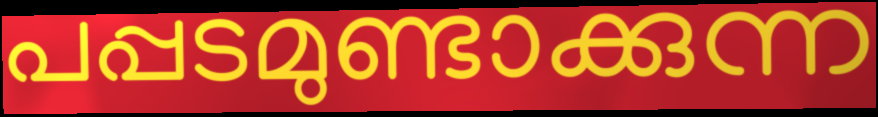
പപ്പടമുണ്ടാക്കുന്ന